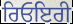
ਰਿਓਇਰੀ